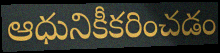
ఆధునికీకరించడం